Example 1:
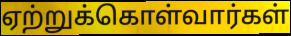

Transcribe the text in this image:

ஏற்றுக்கொள்வார்கள்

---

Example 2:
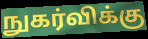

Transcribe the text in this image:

நுகர்விக்கு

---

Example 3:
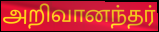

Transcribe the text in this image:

அறிவானந்தர்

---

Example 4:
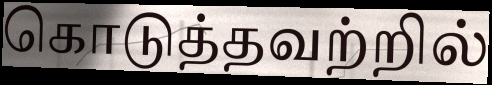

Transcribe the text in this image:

கொடுத்தவற்றில்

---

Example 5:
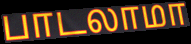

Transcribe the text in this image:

பாடலாமா